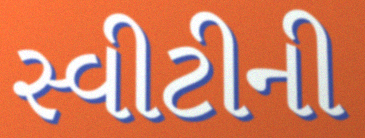
સ્વીટીની